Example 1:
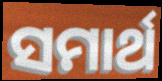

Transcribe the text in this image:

ସମାର୍ଥ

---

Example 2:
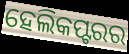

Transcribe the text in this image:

ହେଲିକପ୍ଟରର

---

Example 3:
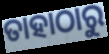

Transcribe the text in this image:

ତାହାଠାରୁ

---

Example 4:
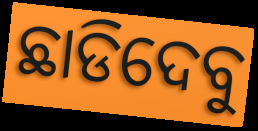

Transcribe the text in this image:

ଛାଡିଦେବୁ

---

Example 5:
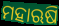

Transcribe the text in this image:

ମହାଋଷି